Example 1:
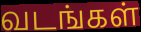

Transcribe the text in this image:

வடங்கள்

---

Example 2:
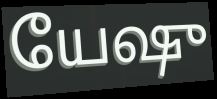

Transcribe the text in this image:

யேஷு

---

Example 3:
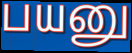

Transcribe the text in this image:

பயனு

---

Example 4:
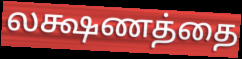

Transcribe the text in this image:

லக்ஷணத்தை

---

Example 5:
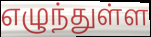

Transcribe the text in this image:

எழுந்துள்ள